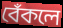
বেঁকলে